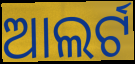
ଆଲର୍ଟ